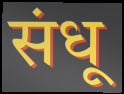
संधू